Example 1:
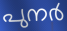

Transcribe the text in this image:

പുനർ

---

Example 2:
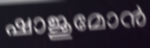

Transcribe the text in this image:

ഷാജുമോൻ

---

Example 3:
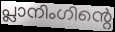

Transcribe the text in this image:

പ്ലാനിംഗിന്റെ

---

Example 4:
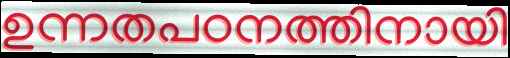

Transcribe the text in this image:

ഉന്നതപഠനത്തിനായി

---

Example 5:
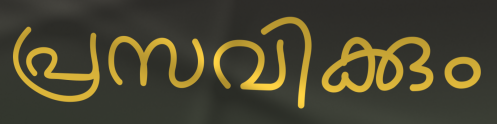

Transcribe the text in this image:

പ്രസവിക്കും